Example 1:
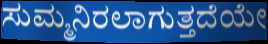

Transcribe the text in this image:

ಸುಮ್ಮನಿರಲಾಗುತ್ತದೆಯೇ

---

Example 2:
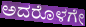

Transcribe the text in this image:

ಅದರೊಳಗೇ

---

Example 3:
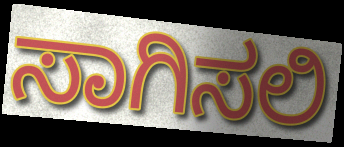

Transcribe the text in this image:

ಸಾಗಿಸಲಿ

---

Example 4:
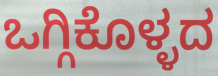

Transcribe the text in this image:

ಒಗ್ಗಿಕೊಳ್ಳದ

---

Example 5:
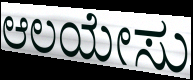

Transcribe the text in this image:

ಆಲಯೇಸು